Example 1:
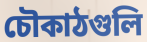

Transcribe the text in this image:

চৌকাঠগুলি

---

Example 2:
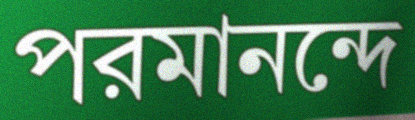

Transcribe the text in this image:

পরমানন্দে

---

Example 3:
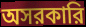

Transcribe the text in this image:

অসরকারি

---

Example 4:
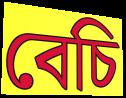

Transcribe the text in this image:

বেচি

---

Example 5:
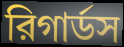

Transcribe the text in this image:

রিগার্ডস